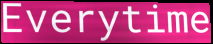
Everytime